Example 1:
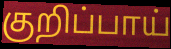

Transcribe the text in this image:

குறிப்பாய்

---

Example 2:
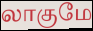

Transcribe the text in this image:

லாகுமே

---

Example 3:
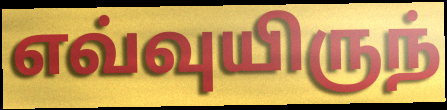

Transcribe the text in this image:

எவ்வுயிருந்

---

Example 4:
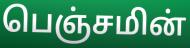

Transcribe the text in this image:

பெஞ்சமின்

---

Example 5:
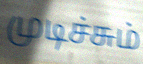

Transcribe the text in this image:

முடிச்சும்